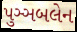
પુઞ્ઞબલેન